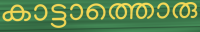
കാട്ടാത്തൊരു